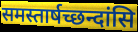
समस्तार्षच्छन्दांसि